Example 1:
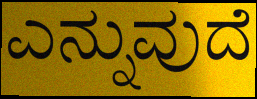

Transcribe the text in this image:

ಎನ್ನುವುದೆ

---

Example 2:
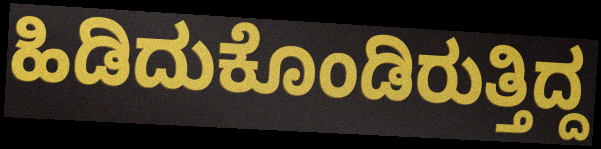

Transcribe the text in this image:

ಹಿಡಿದುಕೊಂಡಿರುತ್ತಿದ್ದ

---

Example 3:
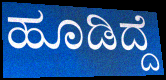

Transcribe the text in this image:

ಹೂಡಿದ್ದೆ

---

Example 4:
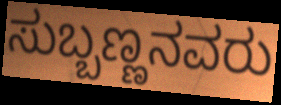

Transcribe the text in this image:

ಸುಬ್ಬಣ್ಣನವರು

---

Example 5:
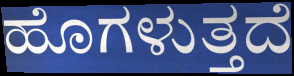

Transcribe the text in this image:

ಹೊಗಳುತ್ತದೆ